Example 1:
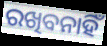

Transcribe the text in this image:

ରଖିବନାହିଁ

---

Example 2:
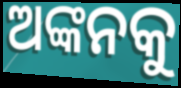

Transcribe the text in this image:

ଅଙ୍କନକୁ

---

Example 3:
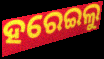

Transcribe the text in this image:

ହରେଇଲୁ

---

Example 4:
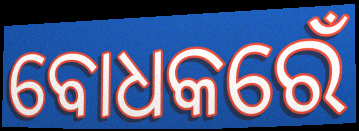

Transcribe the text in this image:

ବୋଧକରେଁ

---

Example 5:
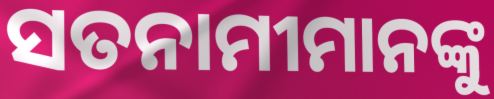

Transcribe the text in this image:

ସତନାମୀମାନଙ୍କୁ